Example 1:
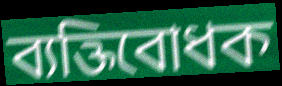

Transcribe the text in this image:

ব্যক্তিবোধক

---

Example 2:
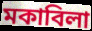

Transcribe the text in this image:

মকাবিলা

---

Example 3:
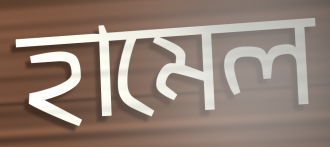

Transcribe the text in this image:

হামেল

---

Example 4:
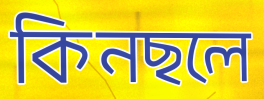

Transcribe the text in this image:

কিনছলে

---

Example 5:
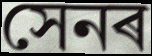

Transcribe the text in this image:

সেনৰ